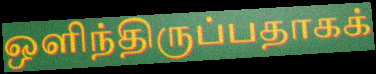
ஒளிந்திருப்பதாகக்